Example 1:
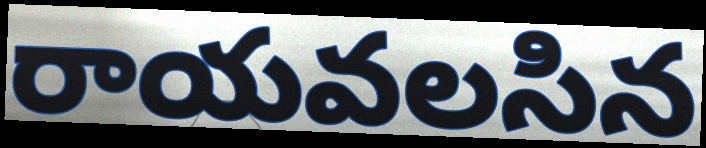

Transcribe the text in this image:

రాయవలసిన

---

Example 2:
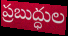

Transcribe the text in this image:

ప్రబుద్ధుల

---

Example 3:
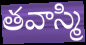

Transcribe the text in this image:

తవాస్మి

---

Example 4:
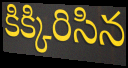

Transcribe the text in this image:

కిక్కిరిసిన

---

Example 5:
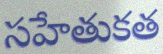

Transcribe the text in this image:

సహేతుకత